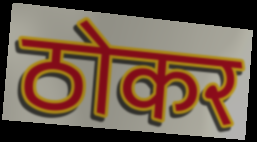
ठोकर